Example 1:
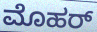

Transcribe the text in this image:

ಮೊಹರ್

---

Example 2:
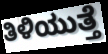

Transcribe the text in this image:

ತಿಳಿಯುತ್ತೆ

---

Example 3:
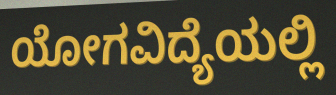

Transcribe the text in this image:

ಯೋಗವಿದ್ಯೆಯಲ್ಲಿ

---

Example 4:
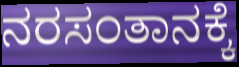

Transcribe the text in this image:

ನರಸಂತಾನಕ್ಕೆ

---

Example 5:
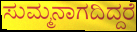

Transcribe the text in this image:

ಸುಮ್ಮನಾಗದಿದ್ದರೆ